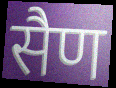
सैण